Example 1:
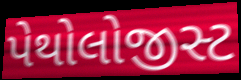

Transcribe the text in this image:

પેથોલોજીસ્ટ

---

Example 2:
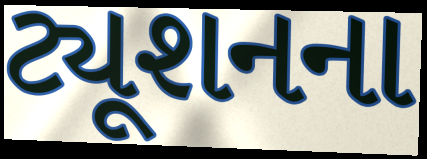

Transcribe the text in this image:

ટ્યૂશનના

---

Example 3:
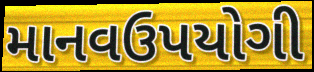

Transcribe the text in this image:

માનવઉપયોગી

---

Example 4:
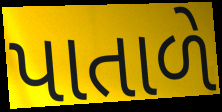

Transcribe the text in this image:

પાતાળે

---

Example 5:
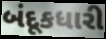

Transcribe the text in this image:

બંદૂકધારી